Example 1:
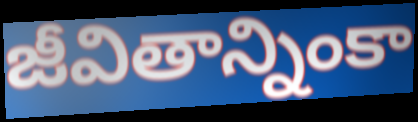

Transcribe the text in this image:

జీవితాన్నింకా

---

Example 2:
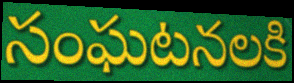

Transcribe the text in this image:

సంఘటనలకి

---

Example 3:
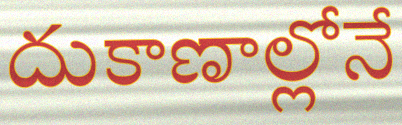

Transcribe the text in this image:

దుకాణాల్లోనే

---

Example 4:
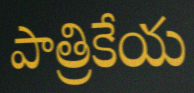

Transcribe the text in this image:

పాత్రికేయ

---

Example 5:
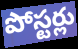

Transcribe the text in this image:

పోస్టర్లు